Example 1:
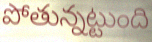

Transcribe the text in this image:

పోతున్నట్టుంది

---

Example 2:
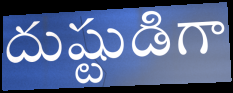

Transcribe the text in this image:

దుష్టుడిగా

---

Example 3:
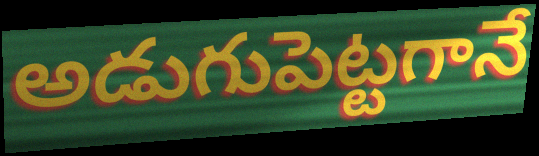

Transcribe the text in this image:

అడుగుపెట్టగానే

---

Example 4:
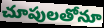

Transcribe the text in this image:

చూపులతోనూ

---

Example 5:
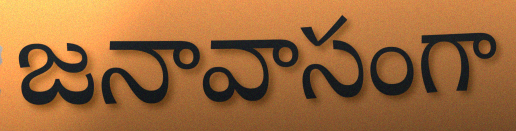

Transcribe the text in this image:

జనావాసంగా